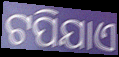
ଟପିଯାଏ